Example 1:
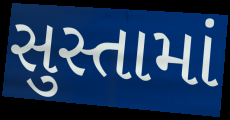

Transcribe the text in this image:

સુસ્તામાં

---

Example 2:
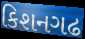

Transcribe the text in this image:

કિશનગઢ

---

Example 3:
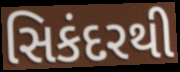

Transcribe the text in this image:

સિકંદરથી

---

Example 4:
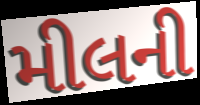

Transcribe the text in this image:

મીલની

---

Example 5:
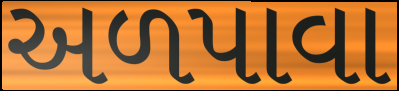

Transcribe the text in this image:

અળપાવા